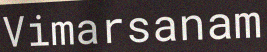
Vimarsanam